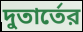
দুতার্তের